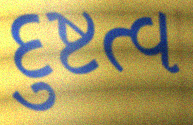
દુષ્ટત્વ